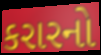
કરારનો